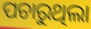
ପଚାରୁଥିଲା